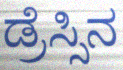
ಡ್ರೆಸ್ಸಿನ